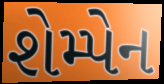
શેમ્પેન